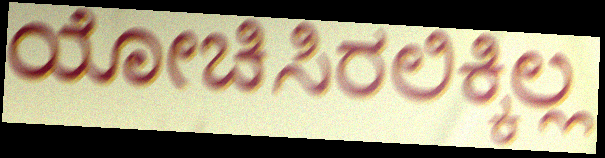
ಯೋಚಿಸಿರಲಿಕ್ಕಿಲ್ಲ